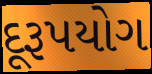
દૂરૂપયોગ